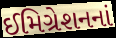
ઈમિગ્રેશનનાં